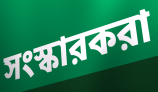
সংস্কারকরা